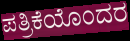
ಪತ್ರಿಕೆಯೊಂದರ